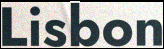
Lisbon